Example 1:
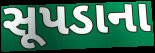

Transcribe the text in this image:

સૂપડાના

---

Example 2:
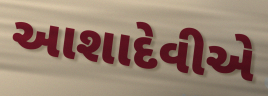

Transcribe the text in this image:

આશાદેવીએ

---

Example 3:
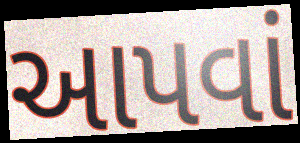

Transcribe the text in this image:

આપવાં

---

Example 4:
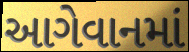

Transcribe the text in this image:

આગેવાનમાં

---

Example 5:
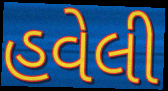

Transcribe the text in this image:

હવેલી